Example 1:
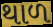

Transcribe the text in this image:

થાળ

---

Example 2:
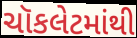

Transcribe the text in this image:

ચૉકલેટમાંથી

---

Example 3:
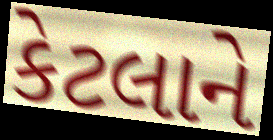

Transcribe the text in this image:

કેટલાને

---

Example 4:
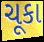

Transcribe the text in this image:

ચૂકા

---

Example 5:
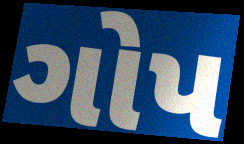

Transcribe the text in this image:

ગોપ